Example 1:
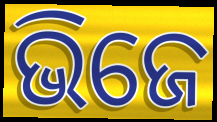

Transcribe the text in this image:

ଭିଜେ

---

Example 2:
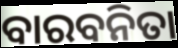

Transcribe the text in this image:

ବାରବନିତା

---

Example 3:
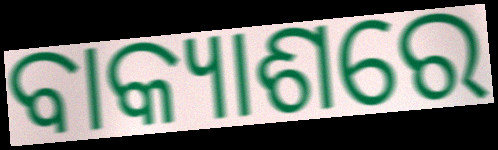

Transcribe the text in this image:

ବାକ୍ୟାଶରେ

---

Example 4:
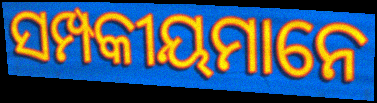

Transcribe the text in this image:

ସମ୍ପକୀୟମାନେ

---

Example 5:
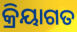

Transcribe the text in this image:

କ୍ରିୟାଗତ